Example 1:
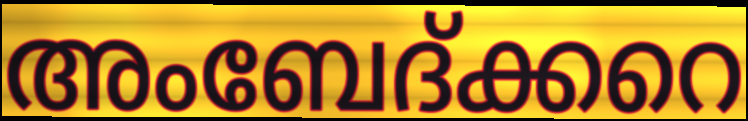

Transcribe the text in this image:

അംബേദ്ക്കറെ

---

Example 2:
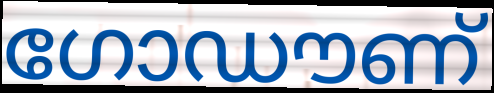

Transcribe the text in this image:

ഗോഡൗണ്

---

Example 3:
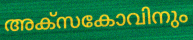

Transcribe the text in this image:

അക്സകോവിനും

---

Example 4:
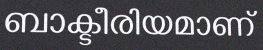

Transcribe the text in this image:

ബാക്ടീരിയമാണ്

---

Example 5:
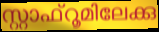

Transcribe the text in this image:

സ്റ്റാഫ്റൂമിലേക്കു